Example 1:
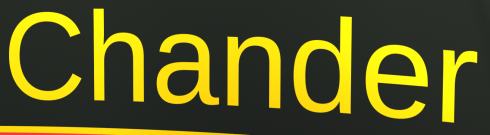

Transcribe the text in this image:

Chander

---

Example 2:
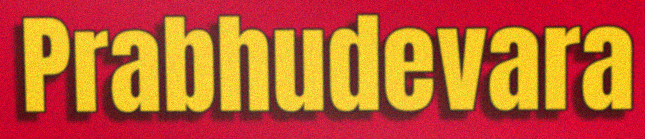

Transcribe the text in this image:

Prabhudevara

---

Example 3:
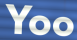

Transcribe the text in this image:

Yoo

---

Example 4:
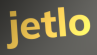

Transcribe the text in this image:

jetlo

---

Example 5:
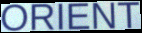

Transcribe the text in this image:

ORIENT